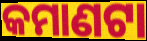
କମାଣଟା